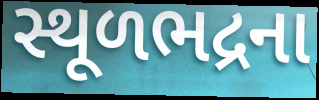
સ્થૂળભદ્રના